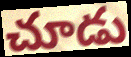
చూడు